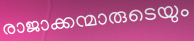
രാജാക്കന്മാരുടെയും